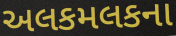
અલકમલકના